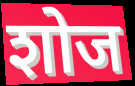
शोज